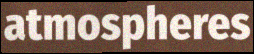
atmospheres